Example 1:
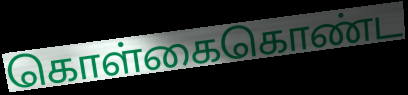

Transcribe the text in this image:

கொள்கைகொண்ட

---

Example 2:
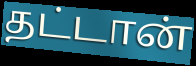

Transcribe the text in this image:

தட்டான்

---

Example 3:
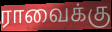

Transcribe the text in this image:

ராவைக்கு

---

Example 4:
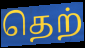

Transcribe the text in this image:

தெற்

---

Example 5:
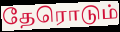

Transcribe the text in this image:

தேரொடும்